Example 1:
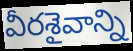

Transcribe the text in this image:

వీరశైవాన్ని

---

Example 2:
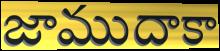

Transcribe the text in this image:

జాముదాకా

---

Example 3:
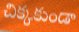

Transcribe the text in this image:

చిక్కకుండా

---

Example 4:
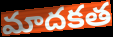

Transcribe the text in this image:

మాదకత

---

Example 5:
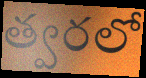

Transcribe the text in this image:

త్వరలో